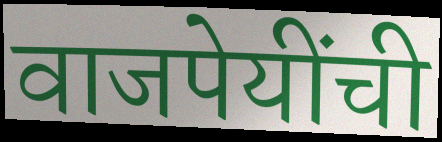
वाजपेयींची